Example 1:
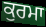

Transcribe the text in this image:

ਕੁਰਮਾ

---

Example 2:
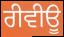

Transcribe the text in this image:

ਰੀਵੀਊ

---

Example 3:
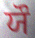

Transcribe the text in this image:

ਯੌ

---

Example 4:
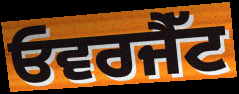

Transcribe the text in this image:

ਓਵਰਜੈੱਟ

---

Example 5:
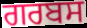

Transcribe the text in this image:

ਗਰਬਸ